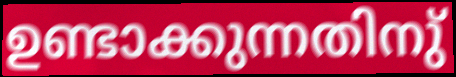
ഉണ്ടാക്കുന്നതിനു്